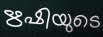
ഋഷിയുടെ